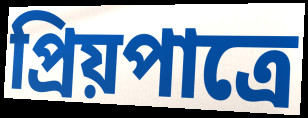
প্রিয়পাত্রে